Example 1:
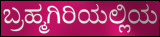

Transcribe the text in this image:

ಬ್ರಹ್ಮಗಿರಿಯಲ್ಲಿಯ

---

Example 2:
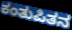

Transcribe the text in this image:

ಕಂತುಪಿತನ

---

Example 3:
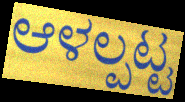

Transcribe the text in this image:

ಆಳಲ್ಪಟ್ಟ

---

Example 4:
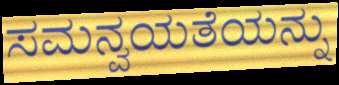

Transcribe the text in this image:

ಸಮನ್ವಯತೆಯನ್ನು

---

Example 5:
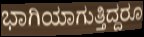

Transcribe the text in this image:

ಭಾಗಿಯಾಗುತ್ತಿದ್ದರೂ